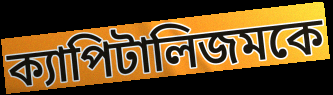
ক্যাপিটালিজমকে